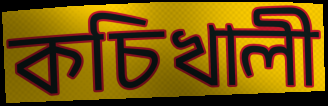
কচিখালী